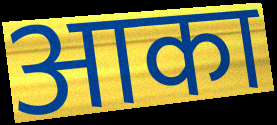
आका